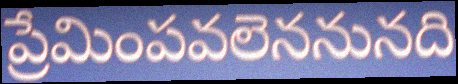
ప్రేమింపవలెననునది